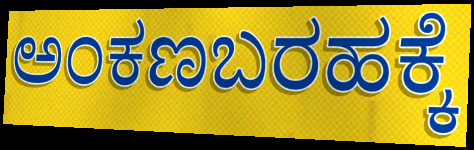
ಅಂಕಣಬರಹಕ್ಕೆ